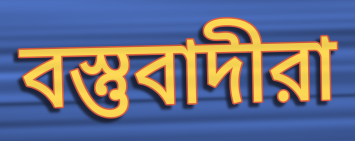
বস্তুবাদীরা